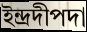
ইন্দ্রদীপদা